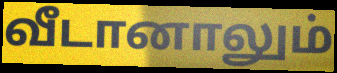
வீடானாலும்